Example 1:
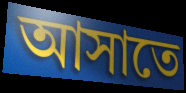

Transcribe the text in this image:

আসাতে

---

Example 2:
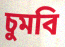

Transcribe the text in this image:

চুমবি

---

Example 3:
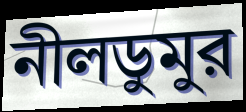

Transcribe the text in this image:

নীলডুমুর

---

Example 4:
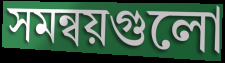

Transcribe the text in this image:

সমন্বয়গুলো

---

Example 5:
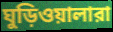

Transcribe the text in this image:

ঘুড়িওয়ালারা